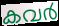
കവർ